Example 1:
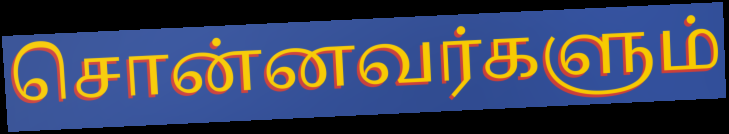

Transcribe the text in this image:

சொன்னவர்களும்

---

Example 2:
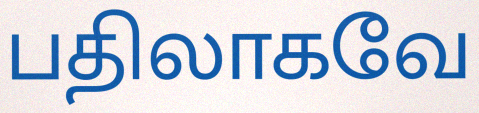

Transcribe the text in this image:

பதிலாகவே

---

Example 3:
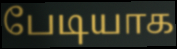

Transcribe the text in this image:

பேடியாக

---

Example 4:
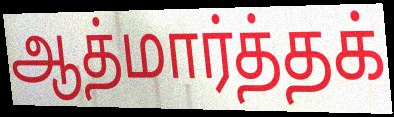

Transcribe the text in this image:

ஆத்மார்த்தக்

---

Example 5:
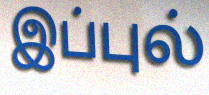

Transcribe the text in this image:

இப்புல்